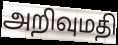
அறிவுமதி